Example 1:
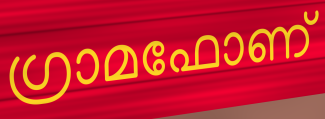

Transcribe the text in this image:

ഗ്രാമഫോണ്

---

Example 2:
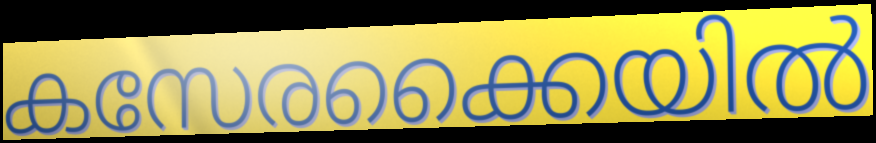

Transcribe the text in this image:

കസേരക്കൈയിൽ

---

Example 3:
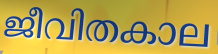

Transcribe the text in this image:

ജീവിതകാല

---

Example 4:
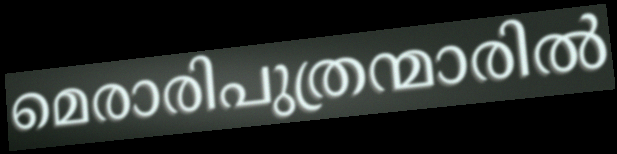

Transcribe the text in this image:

മെരാരിപുത്രന്മാരിൽ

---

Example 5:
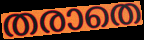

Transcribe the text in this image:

തരാതെ